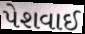
પેશવાઈ